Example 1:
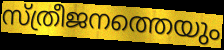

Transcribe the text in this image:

സ്ത്രീജനത്തെയും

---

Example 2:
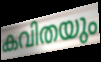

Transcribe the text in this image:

കവിതയും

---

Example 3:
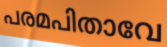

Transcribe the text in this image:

പരമപിതാവേ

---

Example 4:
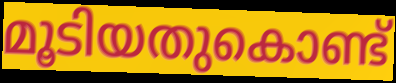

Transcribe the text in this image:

മൂടിയതുകൊണ്ട്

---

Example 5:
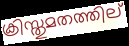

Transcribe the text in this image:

ക്രിസ്തുമതത്തില്